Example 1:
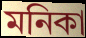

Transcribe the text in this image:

মনিকা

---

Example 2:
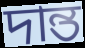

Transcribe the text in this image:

দান্ত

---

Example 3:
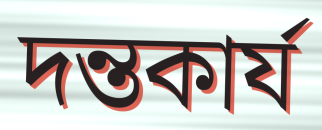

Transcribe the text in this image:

দন্তকার্য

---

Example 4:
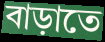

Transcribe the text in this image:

বাড়াতে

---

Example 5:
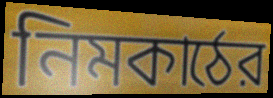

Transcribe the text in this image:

নিমকাঠের